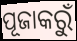
ପୂଜାକରୁଁ